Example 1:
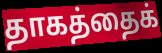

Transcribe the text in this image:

தாகத்தைக்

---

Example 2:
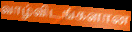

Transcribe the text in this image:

வாழ்விடங்களான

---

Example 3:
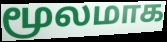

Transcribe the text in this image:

மூலமாக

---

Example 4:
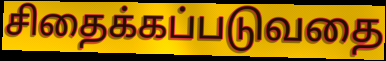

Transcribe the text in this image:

சிதைக்கப்படுவதை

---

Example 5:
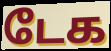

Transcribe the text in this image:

டேக